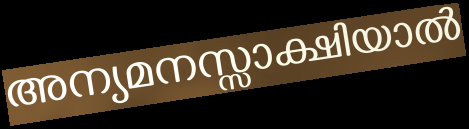
അന്യമനസ്സാക്ഷിയാൽ